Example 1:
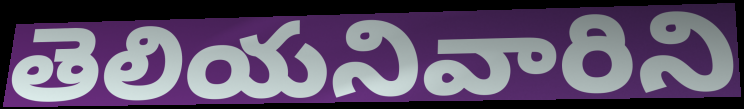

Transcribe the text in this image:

తెలియనివారిని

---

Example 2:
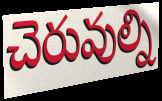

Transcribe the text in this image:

చెరువుల్ని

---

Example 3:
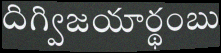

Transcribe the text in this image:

దిగ్విజయార్థంబు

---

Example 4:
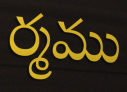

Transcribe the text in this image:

ర్మము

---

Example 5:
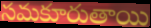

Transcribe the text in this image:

సమకూరుతాయి